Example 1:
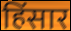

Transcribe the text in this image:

हिंसार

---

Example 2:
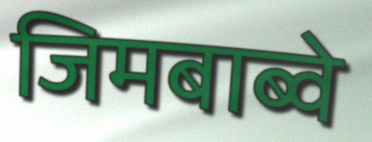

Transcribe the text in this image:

जिमबाब्वे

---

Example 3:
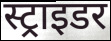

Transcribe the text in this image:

स्ट्राइडर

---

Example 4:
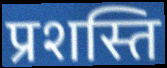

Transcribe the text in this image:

प्रशस्ति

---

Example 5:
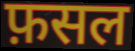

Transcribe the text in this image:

फ़सल